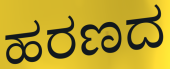
ಹರಣದ